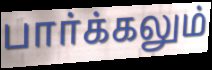
பார்க்கலும்